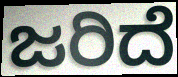
ಜರಿದೆ